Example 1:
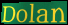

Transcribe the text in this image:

Dolan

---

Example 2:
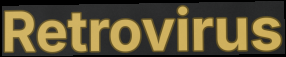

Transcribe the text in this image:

Retrovirus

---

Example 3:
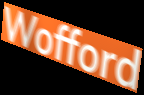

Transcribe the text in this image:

Wofford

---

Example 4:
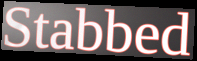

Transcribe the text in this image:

Stabbed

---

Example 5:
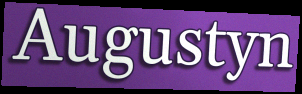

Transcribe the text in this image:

Augustyn